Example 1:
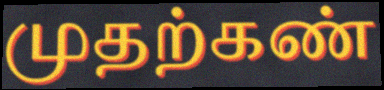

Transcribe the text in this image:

முதற்கண்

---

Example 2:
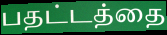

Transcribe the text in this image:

பதட்டத்தை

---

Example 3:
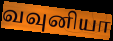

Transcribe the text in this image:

வவுனியா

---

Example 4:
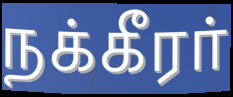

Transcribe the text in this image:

நக்கீரர்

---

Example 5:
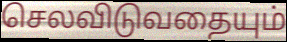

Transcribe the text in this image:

செலவிடுவதையும்